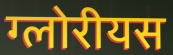
ग्लोरीयस